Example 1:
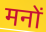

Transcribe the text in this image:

मनों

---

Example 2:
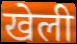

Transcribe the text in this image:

खेली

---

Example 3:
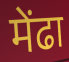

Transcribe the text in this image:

मेंढा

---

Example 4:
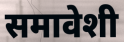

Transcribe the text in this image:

समावेशी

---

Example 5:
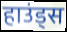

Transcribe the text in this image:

हाउंड्स